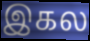
இகல